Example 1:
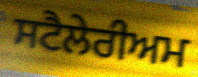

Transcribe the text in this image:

ਸਟੈਲੇਰੀਅਮ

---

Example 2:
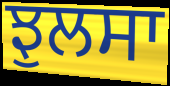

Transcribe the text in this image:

ਝੁਲਸਾ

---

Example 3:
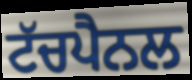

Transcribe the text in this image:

ਟੱਚਪੈਨਲ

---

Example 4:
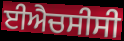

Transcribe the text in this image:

ਈਐਚਸੀਸੀ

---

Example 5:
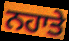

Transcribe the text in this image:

ਨਹਾਤੇ